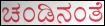
ಚಂಡಿನಂತೆ